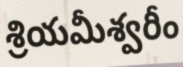
శ్రియమీశ్వరీం